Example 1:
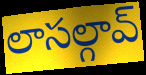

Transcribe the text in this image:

లాసల్గావ్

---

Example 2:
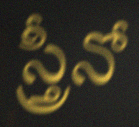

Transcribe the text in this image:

స్త్రీనో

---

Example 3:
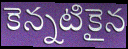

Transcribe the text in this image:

కెన్నటికైన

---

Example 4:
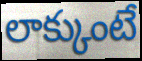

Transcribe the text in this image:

లాక్కుంటే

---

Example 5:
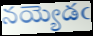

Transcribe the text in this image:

నయ్యెడఁ